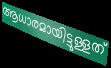
ആധാരമായിട്ടുള്ളത്